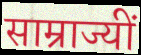
साम्राज्यीं